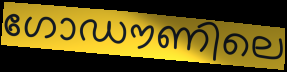
ഗോഡൗണിലെ